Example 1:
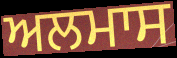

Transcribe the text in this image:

ਅਲਮਾਸ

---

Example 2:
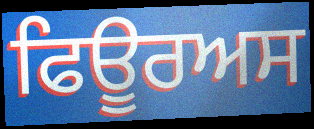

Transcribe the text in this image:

ਫਿਊਰਅਸ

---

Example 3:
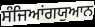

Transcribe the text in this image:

ਸੰਜਿਆਂਗਯੁਆਨ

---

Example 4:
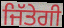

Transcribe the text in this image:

ਜਿੱਤੇਗੀ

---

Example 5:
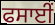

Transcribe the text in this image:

ਫਸਾਈਂ